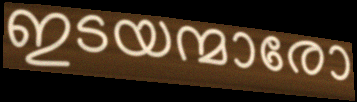
ഇടയന്മാരോ